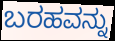
ಬರಹವನ್ನು